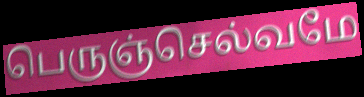
பெருஞ்செல்வமே